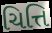
ચિત્તિ